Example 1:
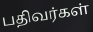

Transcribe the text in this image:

பதிவர்கள்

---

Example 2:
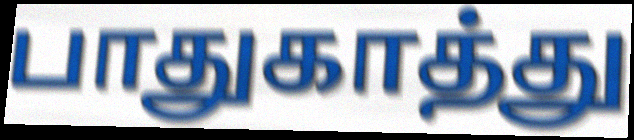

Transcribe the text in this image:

பாதுகாத்து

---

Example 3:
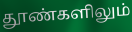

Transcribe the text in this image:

தூண்களிலும்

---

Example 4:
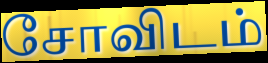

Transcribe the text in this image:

சோவிடம்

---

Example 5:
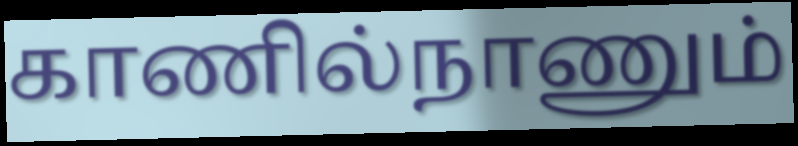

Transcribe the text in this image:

காணில்நாணும்